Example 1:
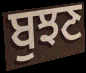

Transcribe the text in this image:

ਬੁਝਣ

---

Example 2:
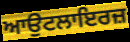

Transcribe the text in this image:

ਆਉਟਲਾਇਰਜ਼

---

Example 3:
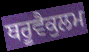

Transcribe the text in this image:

ਥਰੂਵੈਕੁਲਮ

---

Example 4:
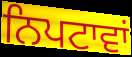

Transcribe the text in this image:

ਨਿਪਟਾਵਾਂ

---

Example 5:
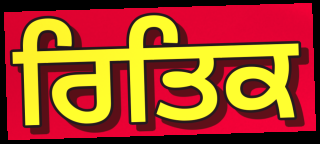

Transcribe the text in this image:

ਰਿਤਿਕ